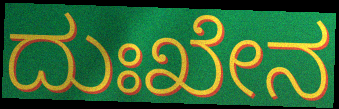
ದುಃಖೇನ